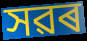
সৱৰ